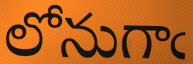
లోనుగాఁ